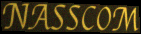
NASSCOM